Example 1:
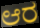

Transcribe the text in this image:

ಆರ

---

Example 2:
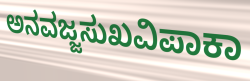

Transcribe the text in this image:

ಅನವಜ್ಜಸುಖವಿಪಾಕಾ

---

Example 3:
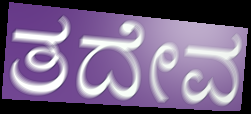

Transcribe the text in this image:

ತದೇವ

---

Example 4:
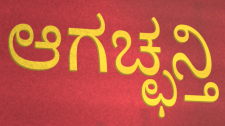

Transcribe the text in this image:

ಆಗಚ್ಛನ್ತಿ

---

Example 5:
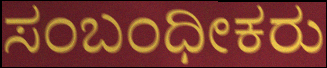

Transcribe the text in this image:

ಸಂಬಂಧೀಕರು